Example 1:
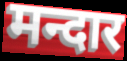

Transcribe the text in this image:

मन्दार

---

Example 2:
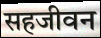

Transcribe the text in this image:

सहजीवन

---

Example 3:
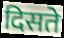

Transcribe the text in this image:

दिसते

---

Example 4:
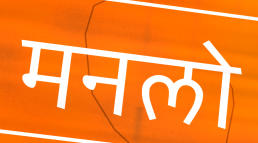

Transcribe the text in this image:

मनलो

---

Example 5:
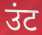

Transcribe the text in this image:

उंट